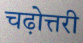
चढ़ोत्तरी